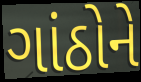
ગાંઠોને